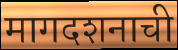
मागदशनाची